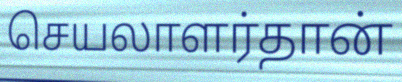
செயலாளர்தான்